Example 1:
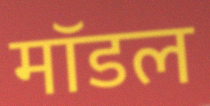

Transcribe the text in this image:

मॉडल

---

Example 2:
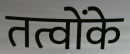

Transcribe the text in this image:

तत्वोंके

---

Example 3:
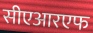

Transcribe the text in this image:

सीएआरएफ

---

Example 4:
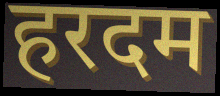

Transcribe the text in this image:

हरदम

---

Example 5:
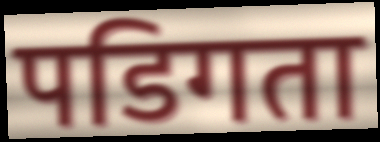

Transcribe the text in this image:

पडिगता